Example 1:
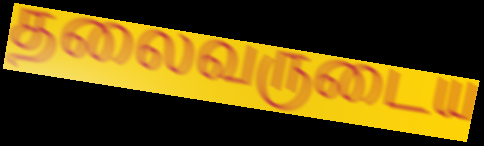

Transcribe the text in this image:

தலைவருடைய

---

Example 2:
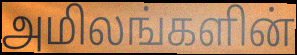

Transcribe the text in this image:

அமிலங்களின்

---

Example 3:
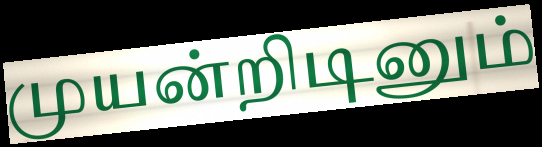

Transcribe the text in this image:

முயன்றிடினும்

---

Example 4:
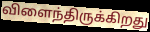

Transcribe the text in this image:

விளைந்திருக்கிறது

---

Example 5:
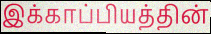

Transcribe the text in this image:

இக்காப்பியத்தின்